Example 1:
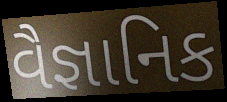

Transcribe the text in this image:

વૈજ્ઞાનિક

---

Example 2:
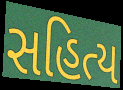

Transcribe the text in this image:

સહિત્ય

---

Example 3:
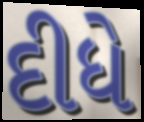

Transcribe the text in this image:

દીધે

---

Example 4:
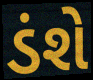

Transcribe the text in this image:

ડંશે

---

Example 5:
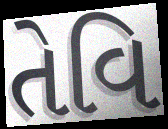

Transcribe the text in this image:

તેવિ